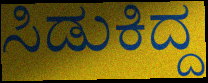
ಸಿಡುಕಿದ್ದ